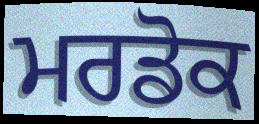
ਮਰਡੋਕ